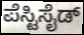
ಪೆಸ್ಟಿಸೈಡ್